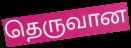
தெருவான